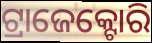
ଟ୍ରାଜେକ୍ଟୋରି